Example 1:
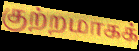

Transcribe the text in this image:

குற்றமாகக்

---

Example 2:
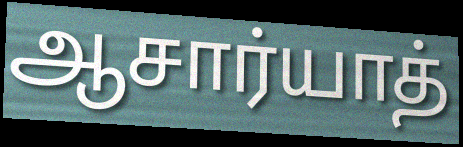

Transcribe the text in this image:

ஆசார்யாத்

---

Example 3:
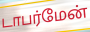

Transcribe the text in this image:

டாபர்மேன்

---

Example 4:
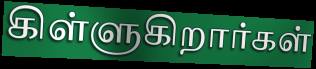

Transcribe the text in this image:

கிள்ளுகிறார்கள்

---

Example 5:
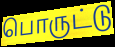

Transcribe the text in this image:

பொருட்டு